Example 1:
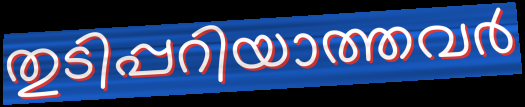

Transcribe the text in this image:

തുടിപ്പറിയാത്തവർ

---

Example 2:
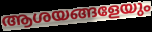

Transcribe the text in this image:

ആശയങ്ങളേയും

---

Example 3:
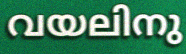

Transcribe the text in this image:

വയലിനു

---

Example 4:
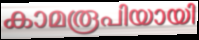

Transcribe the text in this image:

കാമരൂപിയായി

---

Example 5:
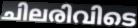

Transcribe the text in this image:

ചിലരിവിടെ